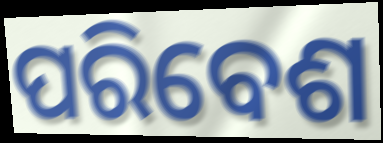
ପରିବେଶ